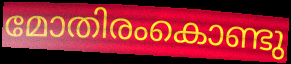
മോതിരംകൊണ്ടു